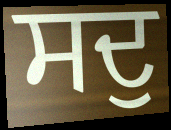
ਸਦੁ